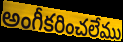
అంగీకరించలేము